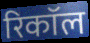
रिकॉल